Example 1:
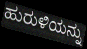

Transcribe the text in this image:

ಹುರುಳಿಯನ್ನು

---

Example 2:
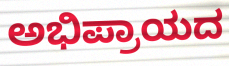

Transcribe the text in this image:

ಅಭಿಪ್ರಾಯದ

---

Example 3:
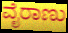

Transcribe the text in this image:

ವೈರಾಣು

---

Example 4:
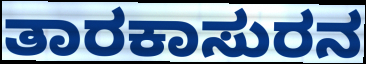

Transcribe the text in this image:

ತಾರಕಾಸುರನ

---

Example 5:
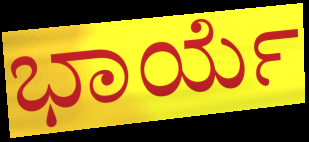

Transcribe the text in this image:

ಭಾರ್ಯೆ